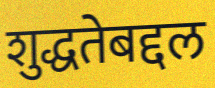
शुद्धतेबद्दल